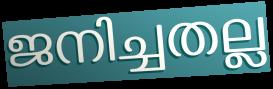
ജനിച്ചതല്ല